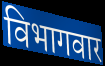
विभागवार